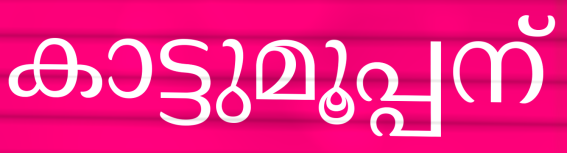
കാട്ടുമൂപ്പന്